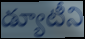
డ్యూటీని